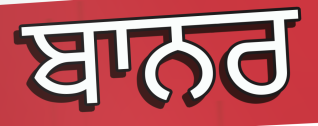
ਬਾਨਰ